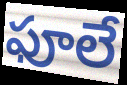
ఫూలే